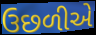
ઉછળીએ